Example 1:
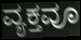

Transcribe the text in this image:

ವ್ಯಕ್ತವೂ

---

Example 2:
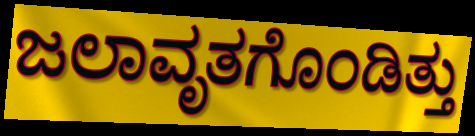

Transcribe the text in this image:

ಜಲಾವೃತಗೊಂಡಿತ್ತು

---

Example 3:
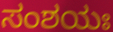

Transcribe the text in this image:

ಸಂಶಯಃ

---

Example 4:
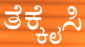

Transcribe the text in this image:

ತೆಕ್ಕೈಸಿ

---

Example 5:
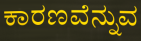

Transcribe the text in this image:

ಕಾರಣವೆನ್ನುವ